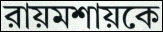
রায়মশায়কে